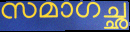
സമാഗച്ഛ